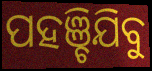
ପହଞ୍ଚିଯିବୁ